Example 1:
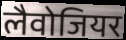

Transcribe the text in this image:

लैवोजियर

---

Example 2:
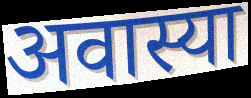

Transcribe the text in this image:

अवास्या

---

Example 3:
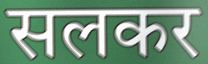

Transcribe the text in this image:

सलकर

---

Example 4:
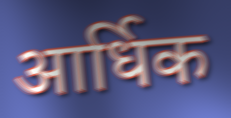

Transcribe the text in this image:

आर्धिक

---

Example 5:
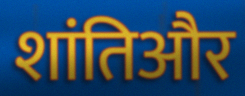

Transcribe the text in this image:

शांतिऔर